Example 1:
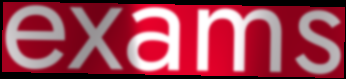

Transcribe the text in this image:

exams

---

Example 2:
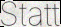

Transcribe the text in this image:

Statt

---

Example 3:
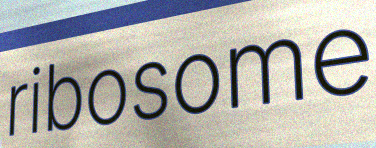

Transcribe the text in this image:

ribosome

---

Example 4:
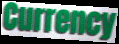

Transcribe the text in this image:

Currency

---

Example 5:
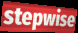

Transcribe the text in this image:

stepwise